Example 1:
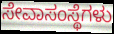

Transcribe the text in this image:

ಸೇವಾಸಂಸ್ಥೆಗಳು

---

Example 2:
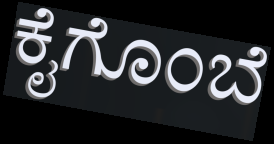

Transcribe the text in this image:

ಕೈಗೊಂಬೆ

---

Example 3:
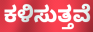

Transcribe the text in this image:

ಕಳಿಸುತ್ತವೆ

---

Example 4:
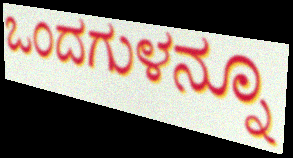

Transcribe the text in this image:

ಒಂದಗುಳನ್ನೂ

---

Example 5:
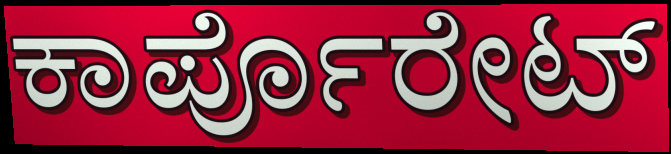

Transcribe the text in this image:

ಕಾರ್ಪೊರೇಟ್